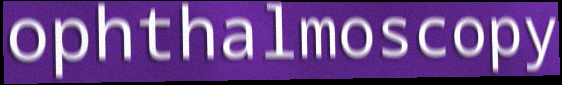
ophthalmoscopy